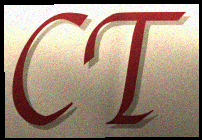
CT